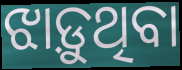
ଝାଡ଼ୁଥିବା